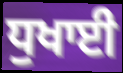
ਧੁਖਾਈ